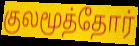
குலமூத்தோர்